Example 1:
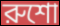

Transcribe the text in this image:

রুশো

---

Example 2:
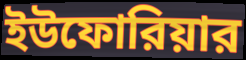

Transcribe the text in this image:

ইউফোরিয়ার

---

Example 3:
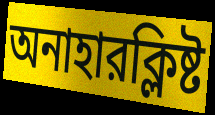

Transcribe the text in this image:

অনাহারক্লিষ্ট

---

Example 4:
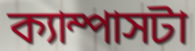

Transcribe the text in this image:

ক্যাম্পাসটা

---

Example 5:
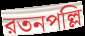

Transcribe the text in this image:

রতনপল্লি